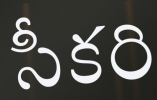
సీకరి